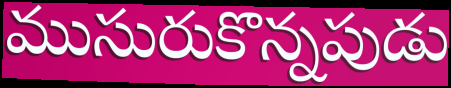
ముసురుకొన్నపుడు